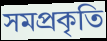
সমপ্রকৃতি